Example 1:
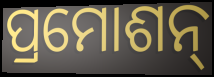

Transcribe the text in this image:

ପ୍ରମୋଶନ୍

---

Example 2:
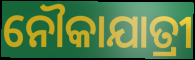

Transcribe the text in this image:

ନୌକାଯାତ୍ରୀ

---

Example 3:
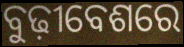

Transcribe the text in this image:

ବୁଢ଼ୀବେଶରେ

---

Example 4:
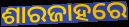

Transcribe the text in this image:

ଶାରଜାହରେ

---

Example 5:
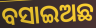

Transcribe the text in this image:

ବସାଇଅଛ